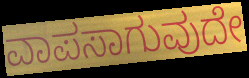
ವಾಪಸಾಗುವುದೇ